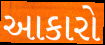
આકારો